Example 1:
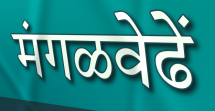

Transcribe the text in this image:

मंगळवेढें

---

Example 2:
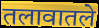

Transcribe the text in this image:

तलावातले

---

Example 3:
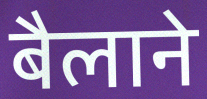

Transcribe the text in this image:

बैलाने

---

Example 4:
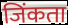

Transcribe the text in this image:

जिंकता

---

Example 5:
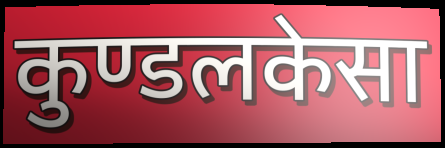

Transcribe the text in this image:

कुण्डलकेसा